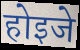
होइजे